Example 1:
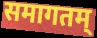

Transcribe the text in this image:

समागतम्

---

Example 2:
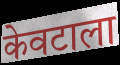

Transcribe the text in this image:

केवटाला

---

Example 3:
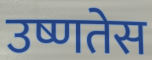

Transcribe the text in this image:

उष्णतेस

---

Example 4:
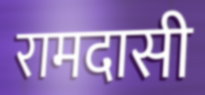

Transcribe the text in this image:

रामदासी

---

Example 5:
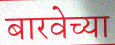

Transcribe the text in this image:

बारवेच्या